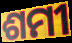
ଶମୀ